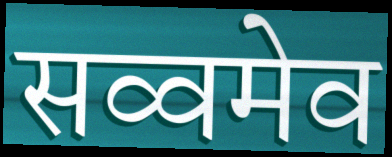
सव्वमेव